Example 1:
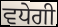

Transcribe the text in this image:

ਵਧੇਗੀ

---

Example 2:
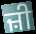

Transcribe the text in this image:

ਜ਼ੀ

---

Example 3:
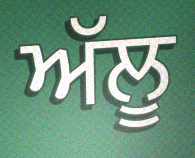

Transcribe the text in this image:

ਅੱਲੂ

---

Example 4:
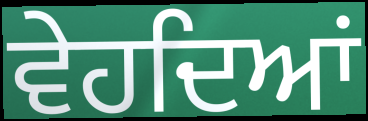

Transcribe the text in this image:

ਵੇਹਦਿਆਂ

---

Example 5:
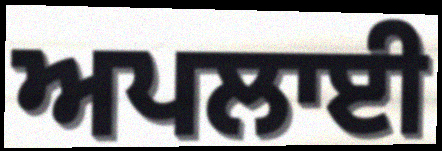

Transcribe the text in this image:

ਅਪਲਾਈ